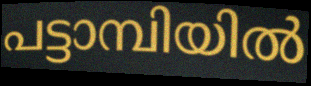
പട്ടാമ്പിയിൽ